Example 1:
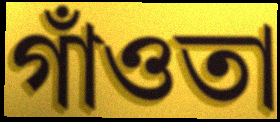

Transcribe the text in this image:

গাঁওতা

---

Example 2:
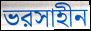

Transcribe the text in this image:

ভরসাহীন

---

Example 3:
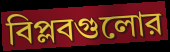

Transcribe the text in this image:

বিপ্লবগুলোর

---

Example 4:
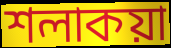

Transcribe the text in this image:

শলাকয়া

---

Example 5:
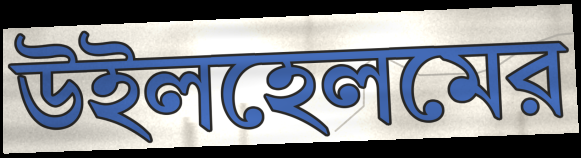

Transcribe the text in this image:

উইলহেলমের